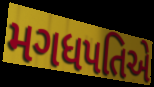
મગધપતિએ